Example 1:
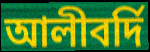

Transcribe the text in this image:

আলীবর্দি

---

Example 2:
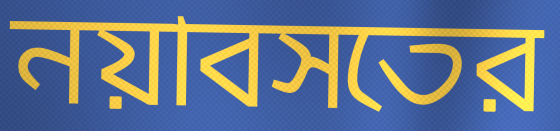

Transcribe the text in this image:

নয়াবসতের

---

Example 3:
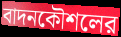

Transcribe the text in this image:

বাদনকৌশলের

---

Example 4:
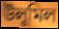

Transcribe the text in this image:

উলূমিল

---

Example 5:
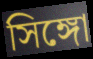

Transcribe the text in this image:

সিঙ্গো